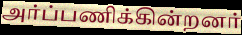
அர்ப்பணிக்கின்றனர்